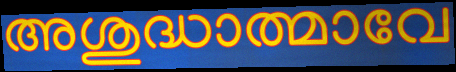
അശുദ്ധാത്മാവേ